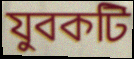
যুবকটি